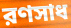
রণসাধ